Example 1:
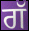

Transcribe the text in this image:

ਗੱ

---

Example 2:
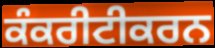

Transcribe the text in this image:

ਕੰਕਰੀਟੀਕਰਨ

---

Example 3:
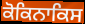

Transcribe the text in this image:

ਕੋਕਿਨਾਕਿਸ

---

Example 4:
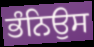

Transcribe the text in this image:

ਭੰਨਿਉਸ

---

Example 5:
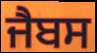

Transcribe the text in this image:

ਜੈਬਸ